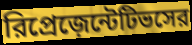
রিপ্রেজ়েন্টেটিভসের